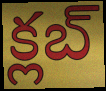
క్లబ్